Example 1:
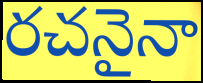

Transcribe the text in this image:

రచనైనా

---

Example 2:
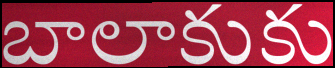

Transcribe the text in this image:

బాలాకుకు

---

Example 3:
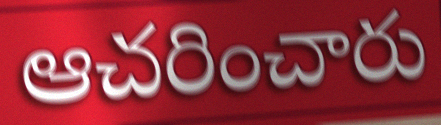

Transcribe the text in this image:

ఆచరించారు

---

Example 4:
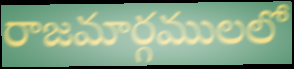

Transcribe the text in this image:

రాజమార్గములలో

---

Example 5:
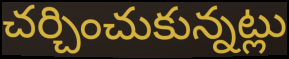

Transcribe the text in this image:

చర్చించుకున్నట్లు